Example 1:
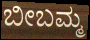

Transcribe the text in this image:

ಬೀಬಮ್ಮ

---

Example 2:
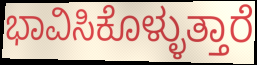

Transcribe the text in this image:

ಭಾವಿಸಿಕೊಳ್ಳುತ್ತಾರೆ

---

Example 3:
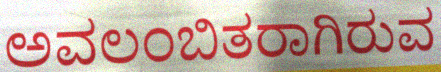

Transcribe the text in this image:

ಅವಲಂಬಿತರಾಗಿರುವ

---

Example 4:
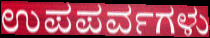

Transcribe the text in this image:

ಉಪಪರ್ವಗಳು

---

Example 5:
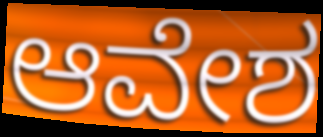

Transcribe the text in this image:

ಆವೇಶ